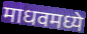
माधवमध्ये